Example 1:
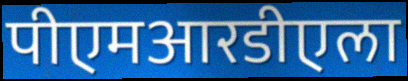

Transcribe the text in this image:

पीएमआरडीएला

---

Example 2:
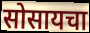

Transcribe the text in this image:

सोसायचा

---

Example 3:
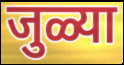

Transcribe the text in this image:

जुळ्या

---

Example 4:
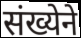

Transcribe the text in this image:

संख्येने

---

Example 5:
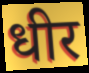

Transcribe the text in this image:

धीर